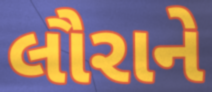
લૌરાને